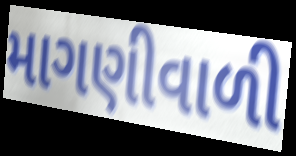
માગણીવાળી